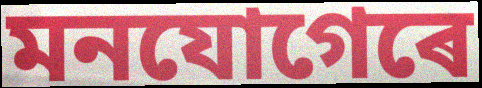
মনযোগেৰে